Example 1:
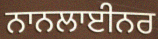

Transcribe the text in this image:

ਨਾਨਲਾਈਨਰ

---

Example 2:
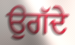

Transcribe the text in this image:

ਉਗੱਦੇ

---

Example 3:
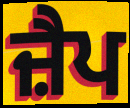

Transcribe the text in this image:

ਜ਼ੈਪ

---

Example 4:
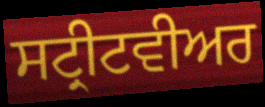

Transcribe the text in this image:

ਸਟ੍ਰੀਟਵੀਅਰ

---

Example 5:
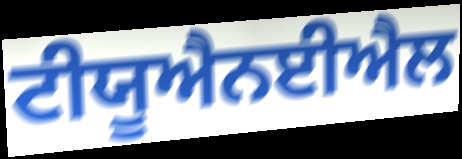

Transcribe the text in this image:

ਟੀਯੂਐਨਈਐਲ